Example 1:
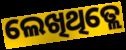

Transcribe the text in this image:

ଲେଖିଥିତ୍ଲେ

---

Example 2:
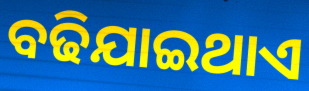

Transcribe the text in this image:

ବଢିଯାଇଥାଏ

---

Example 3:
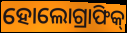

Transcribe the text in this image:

ହୋଲୋଗ୍ରାଫିକ୍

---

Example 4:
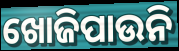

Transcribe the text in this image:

ଖୋଜିପାଉନି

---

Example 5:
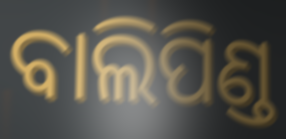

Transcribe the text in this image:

ବାଲିପିଣ୍ଡ